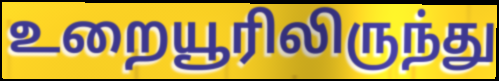
உறையூரிலிருந்து